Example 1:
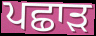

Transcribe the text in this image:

ਪਛਾੜ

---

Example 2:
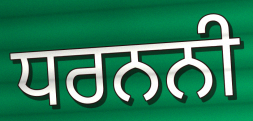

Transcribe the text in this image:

ਧਰਨਨੀ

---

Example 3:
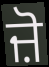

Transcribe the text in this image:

ਜ਼ੋ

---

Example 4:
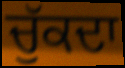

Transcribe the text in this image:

ਚੁੱਕਦਾ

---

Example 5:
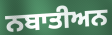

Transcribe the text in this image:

ਨਬਾਤੀਅਨ